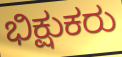
ಭಿಕ್ಷುಕರು